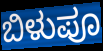
ಬಿಳುಪೂ